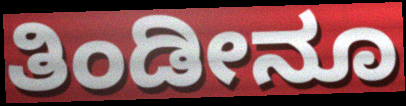
ತಿಂಡೀನೂ